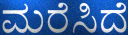
ಮರೆಸಿದೆ